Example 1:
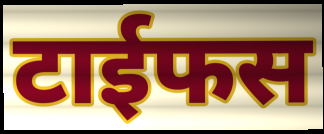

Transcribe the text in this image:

टाईफस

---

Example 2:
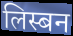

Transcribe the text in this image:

लिस्बन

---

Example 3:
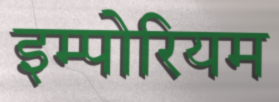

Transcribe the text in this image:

इम्पोरियम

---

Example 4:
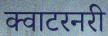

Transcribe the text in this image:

क्वाटरनरी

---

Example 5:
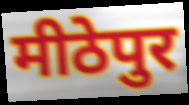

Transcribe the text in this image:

मीठेपुर